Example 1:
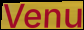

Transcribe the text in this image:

Venu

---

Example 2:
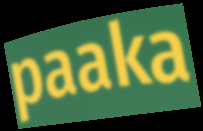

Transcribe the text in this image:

paaka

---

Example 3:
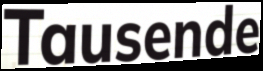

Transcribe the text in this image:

Tausende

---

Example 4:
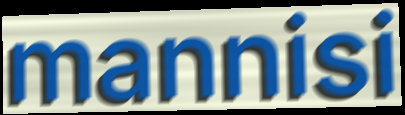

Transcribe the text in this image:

mannisi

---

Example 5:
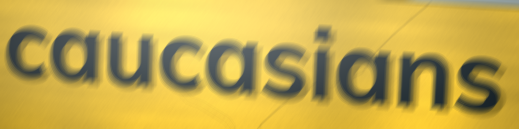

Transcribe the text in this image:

caucasians